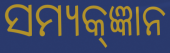
ସମ୍ୟକ୍‌ଜ୍ଞାନ